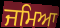
ਜਮਿਆ